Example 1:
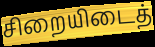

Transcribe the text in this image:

சிறையிடைத்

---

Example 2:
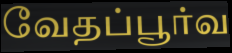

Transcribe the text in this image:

வேதப்பூர்வ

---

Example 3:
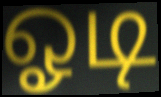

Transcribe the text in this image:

ஓடி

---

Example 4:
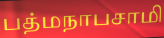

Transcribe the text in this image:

பத்மநாபசாமி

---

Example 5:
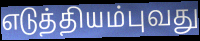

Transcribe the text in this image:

எடுத்தியம்புவது